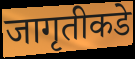
जागृतीकडे